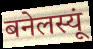
बनेलस्यूं